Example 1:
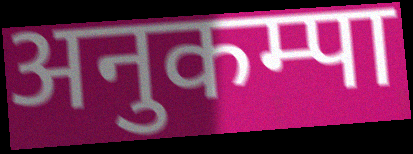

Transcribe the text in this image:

अनुकम्पा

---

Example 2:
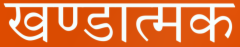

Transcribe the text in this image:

खण्डात्मक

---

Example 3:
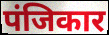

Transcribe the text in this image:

पंजिकार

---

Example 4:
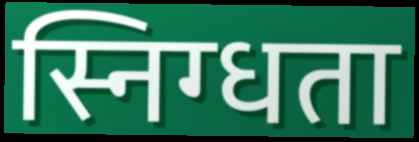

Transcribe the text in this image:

स्निग्धता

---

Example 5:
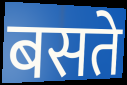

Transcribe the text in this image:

बसते